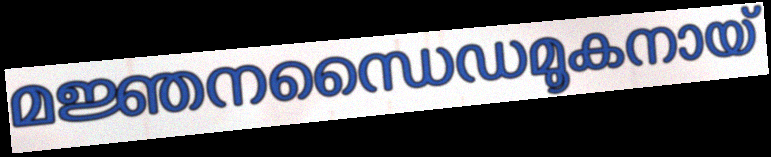
മജ്ഞനന്ധൈഡമൂകനായ്